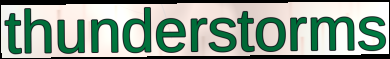
thunderstorms